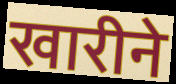
खारीने